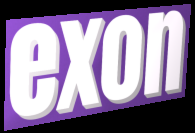
exon